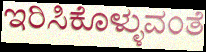
ಇರಿಸಿಕೊಳ್ಳುವಂತೆ